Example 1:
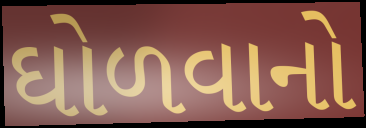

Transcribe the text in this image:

ઘોળવાનો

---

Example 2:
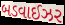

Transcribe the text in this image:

બડવાઈઝર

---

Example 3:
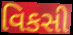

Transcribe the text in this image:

વિકસી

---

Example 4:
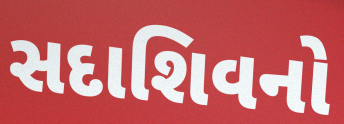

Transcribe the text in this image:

સદાશિવનો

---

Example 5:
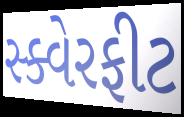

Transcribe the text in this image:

સ્ક્વેરફીટ